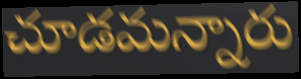
చూడమన్నారు